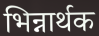
भिन्नार्थक